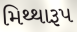
મિથ્થારૂપ